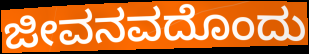
ಜೀವನವದೊಂದು